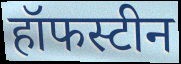
हॉफस्टीन